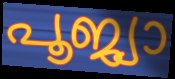
പൂജ്യാ